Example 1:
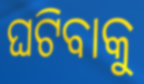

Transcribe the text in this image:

ଘଟିବାକୁ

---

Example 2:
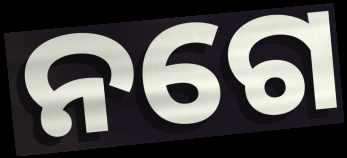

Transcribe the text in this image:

ନଗେ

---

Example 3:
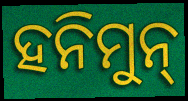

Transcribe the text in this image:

ହନିମୁନ୍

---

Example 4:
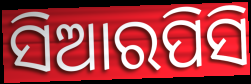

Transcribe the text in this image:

ସିଆରପିସି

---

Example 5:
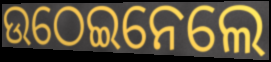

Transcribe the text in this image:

ଉଠେଇନେଲେ